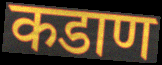
कडाण